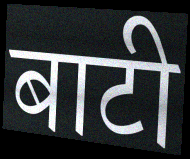
बाटी